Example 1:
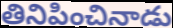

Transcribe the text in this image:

తినిపించినాడు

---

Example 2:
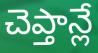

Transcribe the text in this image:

చెప్తాన్లే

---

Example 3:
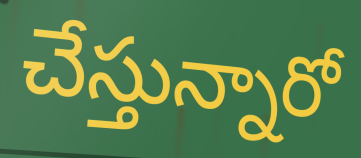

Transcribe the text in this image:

చేస్తున్నారో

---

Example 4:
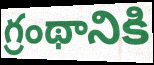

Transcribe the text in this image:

గ్రంథానికి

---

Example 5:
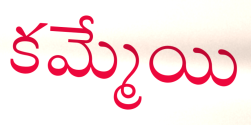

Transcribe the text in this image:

కమ్మేయి